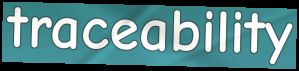
traceability